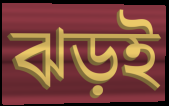
ঝড়ই